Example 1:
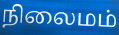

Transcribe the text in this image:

நிலைமம்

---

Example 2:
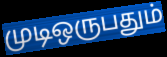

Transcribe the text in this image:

முடிஒருபதும்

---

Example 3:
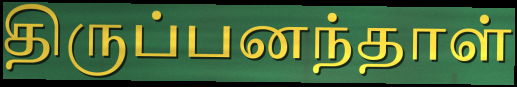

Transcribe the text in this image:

திருப்பனந்தாள்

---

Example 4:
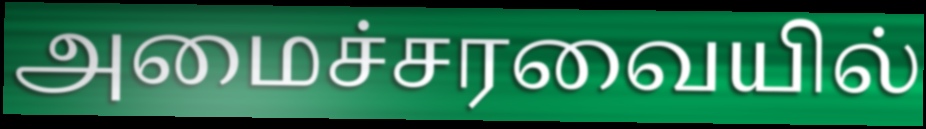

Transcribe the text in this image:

அமைச்சரவையில்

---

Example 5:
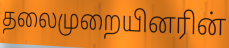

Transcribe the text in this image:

தலைமுறையினரின்